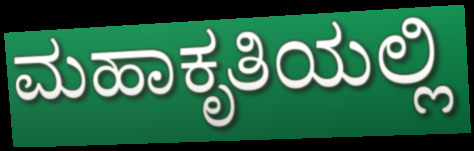
ಮಹಾಕೃತಿಯಲ್ಲಿ